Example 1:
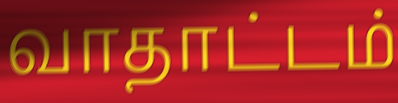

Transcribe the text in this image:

வாதாட்டம்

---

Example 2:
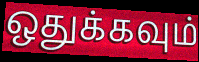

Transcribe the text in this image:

ஒதுக்கவும்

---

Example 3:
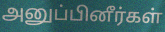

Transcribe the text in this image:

அனுப்பினீர்கள்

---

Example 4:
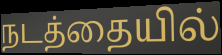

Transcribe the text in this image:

நடத்தையில்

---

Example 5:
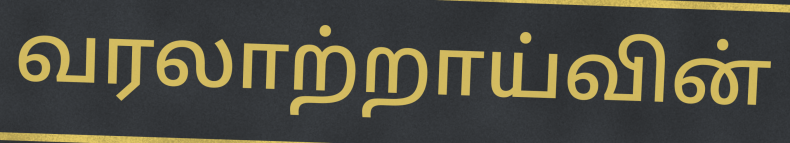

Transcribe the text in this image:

வரலாற்றாய்வின்